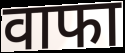
वाफा